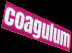
coagulum